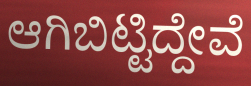
ಆಗಿಬಿಟ್ಟಿದ್ದೇವೆ